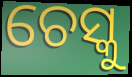
ଚେସ୍କୁ